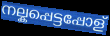
നല്കപ്പെട്ടപ്പോള്